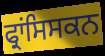
ਫ੍ਰਾਂਸਿਸਕਨ